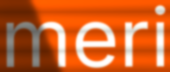
meri